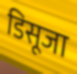
डिसूजा